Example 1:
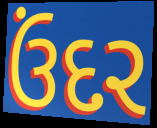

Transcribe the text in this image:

ઉંદર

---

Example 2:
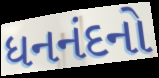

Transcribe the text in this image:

ધનનંદનો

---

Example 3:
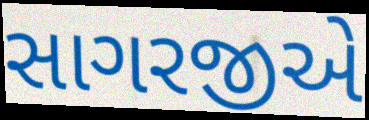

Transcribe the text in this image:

સાગરજીએ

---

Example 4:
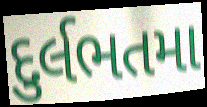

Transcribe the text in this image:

દુર્લભતમા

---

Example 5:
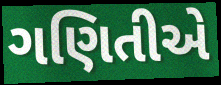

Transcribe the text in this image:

ગણિતીએ